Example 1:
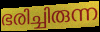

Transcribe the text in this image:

ഭരിച്ചിരുന്ന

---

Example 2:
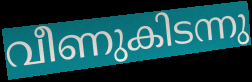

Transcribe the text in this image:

വീണുകിടന്നു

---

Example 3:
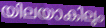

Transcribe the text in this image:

യിലയാകിലും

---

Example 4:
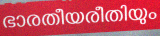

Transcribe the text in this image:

ഭാരതീയരീതിയും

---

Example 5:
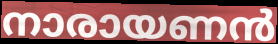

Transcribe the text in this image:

നാരായണൻ